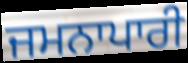
ਜਮਨਾਪਾਰੀ